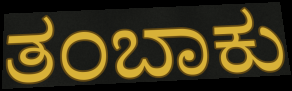
ತಂಬಾಕು